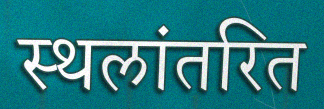
स्थलांतरित